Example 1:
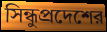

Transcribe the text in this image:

সিন্ধুপ্রদেশের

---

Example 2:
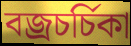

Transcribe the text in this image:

বজ্রচর্চিকা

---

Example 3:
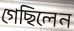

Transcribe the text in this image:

গেছিলেন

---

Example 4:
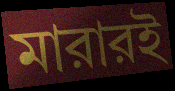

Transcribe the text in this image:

মারারই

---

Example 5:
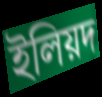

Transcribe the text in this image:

ইলিয়দ